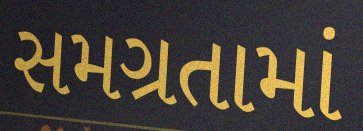
સમગ્રતામાં